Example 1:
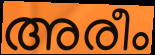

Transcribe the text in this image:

അരീം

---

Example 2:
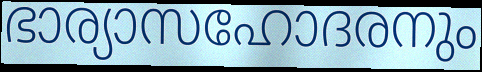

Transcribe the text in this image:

ഭാര്യാസഹോദരനും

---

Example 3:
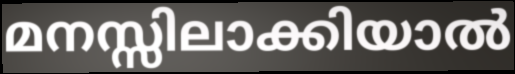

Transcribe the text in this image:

മനസ്സിലാക്കിയാൽ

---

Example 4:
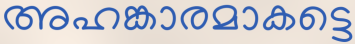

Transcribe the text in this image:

അഹങ്കാരമാകട്ടെ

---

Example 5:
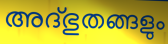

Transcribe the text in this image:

അദ്ഭുതങ്ങളും